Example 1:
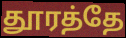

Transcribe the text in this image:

தூரத்தே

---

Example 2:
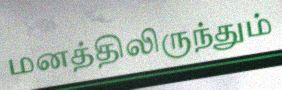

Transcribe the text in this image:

மனத்திலிருந்தும்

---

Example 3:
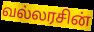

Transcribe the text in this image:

வல்லரசின்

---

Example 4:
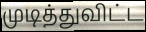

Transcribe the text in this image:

முடித்துவிட்ட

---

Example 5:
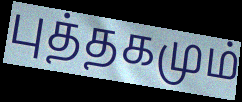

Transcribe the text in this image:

புத்தகமும்